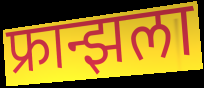
फ्रान्झला